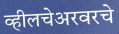
व्हीलचेअरवरचे